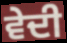
ਵੇਦੀ